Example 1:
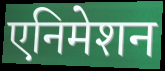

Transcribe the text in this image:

एनिमेशन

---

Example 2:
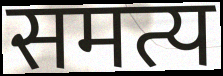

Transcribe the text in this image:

समत्य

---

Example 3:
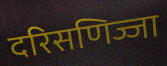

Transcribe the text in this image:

दरिसणिज्जा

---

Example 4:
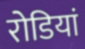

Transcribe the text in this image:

रोडियां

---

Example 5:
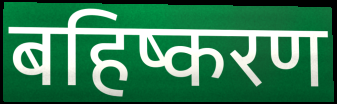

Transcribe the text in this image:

बहिष्करण